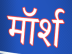
मॉर्श